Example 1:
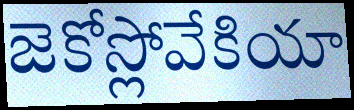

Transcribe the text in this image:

జెకోస్లోవేకియా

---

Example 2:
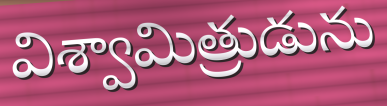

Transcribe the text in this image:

విశ్వామిత్రుడును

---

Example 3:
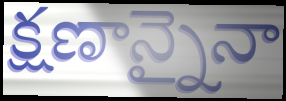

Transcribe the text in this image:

క్షణాన్నైనా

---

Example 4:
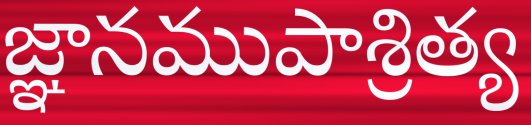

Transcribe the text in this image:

జ్ఞానముపాశ్రిత్య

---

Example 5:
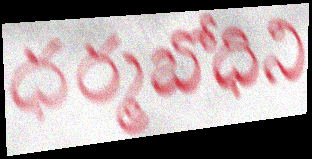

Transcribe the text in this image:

ధర్మబోధిని